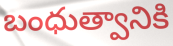
బంధుత్వానికి